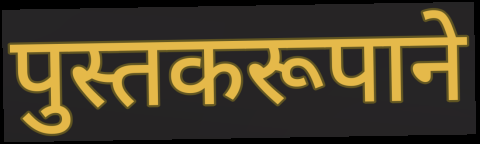
पुस्तकरूपाने